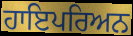
ਹਾਇਪਰਿਅਨ